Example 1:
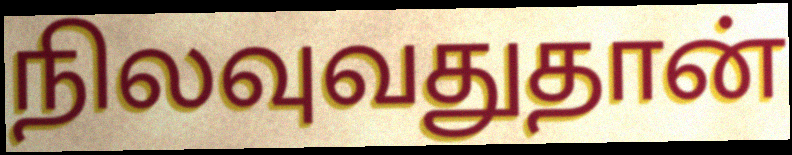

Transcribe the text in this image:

நிலவுவதுதான்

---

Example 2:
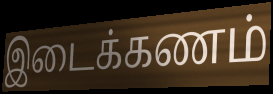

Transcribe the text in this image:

இடைக்கணம்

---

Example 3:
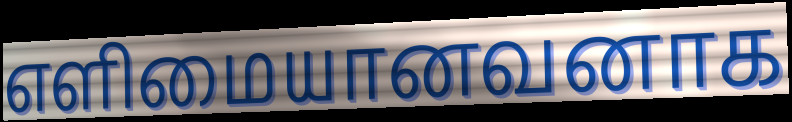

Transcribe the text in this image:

எளிமையானவனாக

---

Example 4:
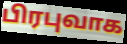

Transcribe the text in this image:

பிரபுவாக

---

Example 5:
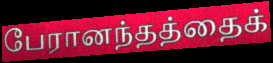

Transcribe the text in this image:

பேரானந்தத்தைக்